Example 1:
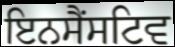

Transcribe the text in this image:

ਇਨਸੈਂਸਟਿਵ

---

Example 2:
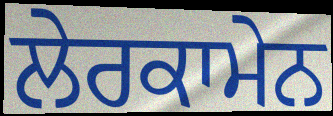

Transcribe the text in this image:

ਲੇਰਕਾਮੇਨ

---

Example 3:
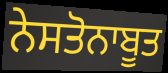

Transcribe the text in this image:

ਨੇਸਤੋਨਾਬੂਤ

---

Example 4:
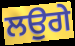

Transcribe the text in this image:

ਲਉਗੇ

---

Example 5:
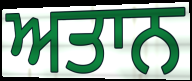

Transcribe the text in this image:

ਅਤਾਨ